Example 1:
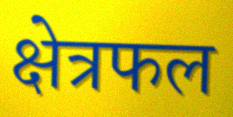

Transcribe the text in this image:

क्षेत्रफल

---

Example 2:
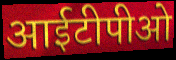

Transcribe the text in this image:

आईटीपीओ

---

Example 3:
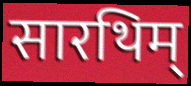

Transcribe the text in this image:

सारथिम्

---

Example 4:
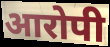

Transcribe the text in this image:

आरोपी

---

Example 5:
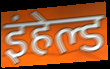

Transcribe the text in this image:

इंहेल्ड